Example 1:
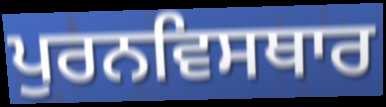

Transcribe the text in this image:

ਪੁਰਨਵਿਸਥਾਰ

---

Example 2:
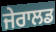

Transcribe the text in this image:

ਜੇਰਾਲਡ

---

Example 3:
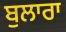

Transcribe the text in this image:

ਬੁਲਾਰਾ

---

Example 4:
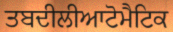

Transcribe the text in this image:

ਤਬਦੀਲੀਆਟੋਮੈਟਿਕ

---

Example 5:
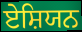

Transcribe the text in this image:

ਏਸ਼ਿਯਨ